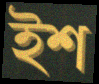
ইশ